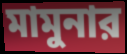
মামুনার